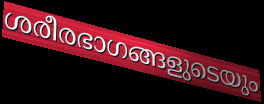
ശരീരഭാഗങ്ങളുടെയും